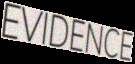
EVIDENCE